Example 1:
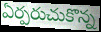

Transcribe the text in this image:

ఏర్పరుచుకొన్న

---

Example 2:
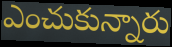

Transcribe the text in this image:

ఎంచుకున్నారు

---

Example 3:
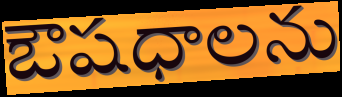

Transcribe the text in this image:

ఔషధాలను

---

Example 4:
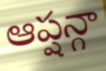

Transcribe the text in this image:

ఆప్షన్గా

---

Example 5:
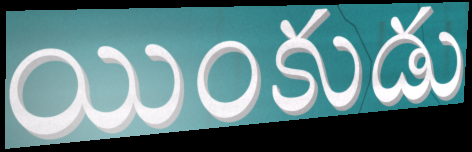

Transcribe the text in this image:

యింకుడు